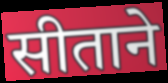
सीताने